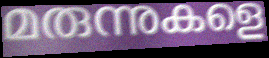
മരുന്നുകളെ